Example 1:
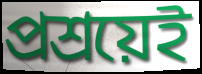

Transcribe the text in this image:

প্রশ্রয়েই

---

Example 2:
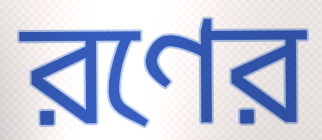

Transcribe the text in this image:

রণের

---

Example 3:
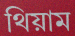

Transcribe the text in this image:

থিয়াম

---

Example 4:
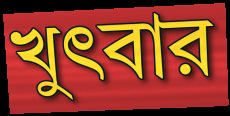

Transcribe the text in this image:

খুৎবার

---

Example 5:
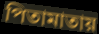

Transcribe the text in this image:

পিতামাতায়